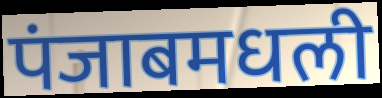
पंजाबमधली